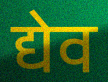
द्येव